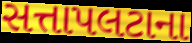
સત્તાપલટાના